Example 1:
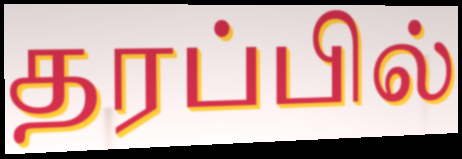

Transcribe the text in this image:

தரப்பில்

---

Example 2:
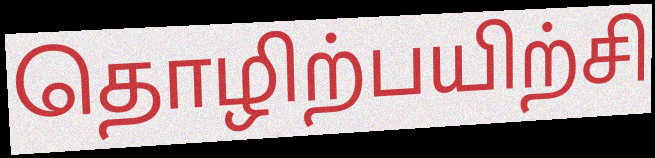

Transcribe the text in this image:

தொழிற்பயிற்சி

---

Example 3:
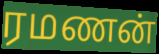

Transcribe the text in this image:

ரமணன்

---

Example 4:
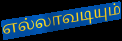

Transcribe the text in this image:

எல்லாவடியும்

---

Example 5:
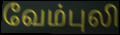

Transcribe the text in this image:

வேம்புலி